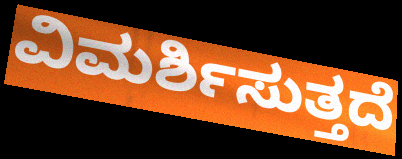
ವಿಮರ್ಶಿಸುತ್ತದೆ